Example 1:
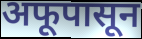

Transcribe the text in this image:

अफूपासून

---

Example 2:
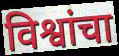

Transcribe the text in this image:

विश्वांचा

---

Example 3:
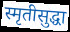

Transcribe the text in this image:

स्मृतीसुद्धा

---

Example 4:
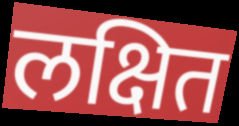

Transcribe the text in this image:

लक्षित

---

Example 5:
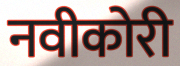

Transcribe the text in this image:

नवीकोरी